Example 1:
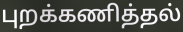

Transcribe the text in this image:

புறக்கணித்தல்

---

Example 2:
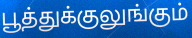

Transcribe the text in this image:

பூத்துக்குலுங்கும்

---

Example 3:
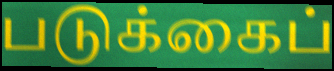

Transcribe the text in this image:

படுக்கைப்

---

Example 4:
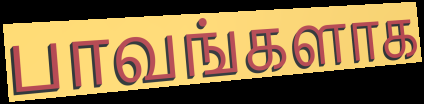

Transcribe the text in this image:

பாவங்களாக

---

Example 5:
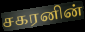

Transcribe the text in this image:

சகரனின்